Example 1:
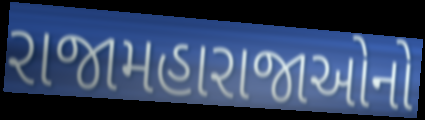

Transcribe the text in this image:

રાજામહારાજાઓનો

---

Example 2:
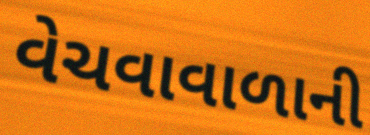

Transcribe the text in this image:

વેચવાવાળાની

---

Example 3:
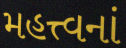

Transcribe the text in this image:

મહત્ત્વનાં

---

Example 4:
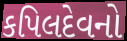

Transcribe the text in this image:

કપિલદેવનો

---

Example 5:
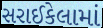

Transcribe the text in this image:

સરાઈકેલામાં